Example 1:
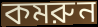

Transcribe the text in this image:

কমরুন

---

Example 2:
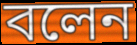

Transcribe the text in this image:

বলেন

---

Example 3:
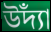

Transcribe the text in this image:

উদ্যাঁ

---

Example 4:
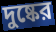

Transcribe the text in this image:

দুষ্কের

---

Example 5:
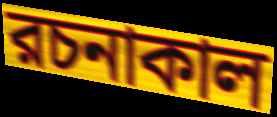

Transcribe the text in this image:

রচনাকাল